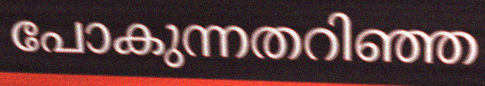
പോകുന്നതറിഞ്ഞ